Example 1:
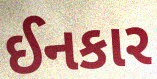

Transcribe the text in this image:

ઈનકાર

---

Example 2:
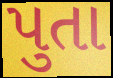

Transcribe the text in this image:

પુતા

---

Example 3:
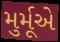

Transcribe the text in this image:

મુર્મૂએ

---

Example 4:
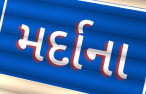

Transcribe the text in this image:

મર્દાના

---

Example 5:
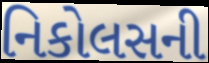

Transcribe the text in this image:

નિકોલસની